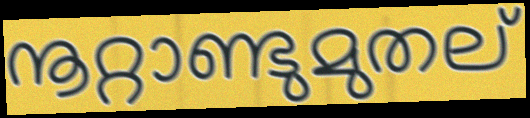
നൂറ്റാണ്ടുമുതല്